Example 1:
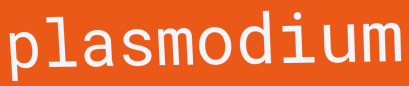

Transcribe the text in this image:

plasmodium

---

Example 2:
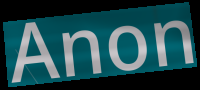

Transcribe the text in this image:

Anon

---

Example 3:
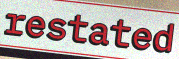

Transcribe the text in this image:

restated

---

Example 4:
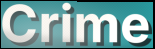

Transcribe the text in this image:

Crime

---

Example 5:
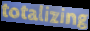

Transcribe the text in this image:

totalizing